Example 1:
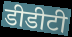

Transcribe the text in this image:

डीडीटी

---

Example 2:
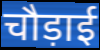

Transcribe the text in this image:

चौड़ाई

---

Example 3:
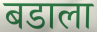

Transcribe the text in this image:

बडाला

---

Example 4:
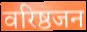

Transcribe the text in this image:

वरिष्ठजन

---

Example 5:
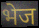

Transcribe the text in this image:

भेज